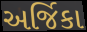
અર્જિકા